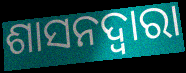
ଶାସନଦ୍ୱାରା